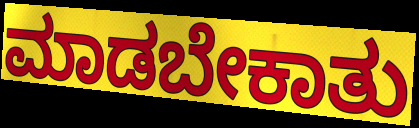
ಮಾಡಬೇಕಾತು